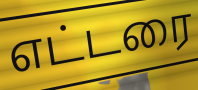
எட்டரை